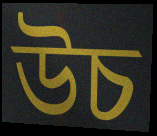
উচ